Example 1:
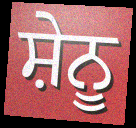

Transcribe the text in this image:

ਸ਼ੇਨੂ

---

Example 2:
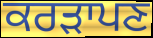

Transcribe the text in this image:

ਕਰੜਾਪਣ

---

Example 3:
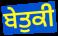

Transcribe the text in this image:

ਬੇਤੁਕੀ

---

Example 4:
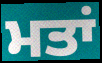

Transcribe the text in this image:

ਮਤਾਂ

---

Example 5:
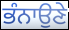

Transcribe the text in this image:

ਭੰਨਾਉਣੇ